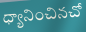
ధ్యానించినచో